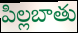
పిల్లబాతు